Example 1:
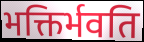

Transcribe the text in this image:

भक्तिर्भवति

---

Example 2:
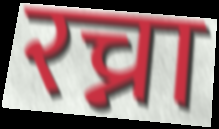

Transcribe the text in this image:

रच्ना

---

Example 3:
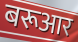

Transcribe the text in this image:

बरूआर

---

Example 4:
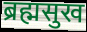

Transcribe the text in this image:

ब्रह्मसुख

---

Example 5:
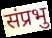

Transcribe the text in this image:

संप्रभु